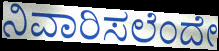
ನಿವಾರಿಸಲೆಂದೇ